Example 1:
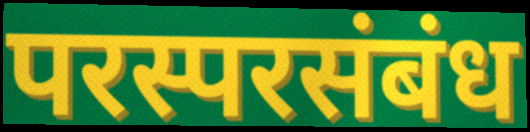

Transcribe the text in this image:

परस्परसंबंध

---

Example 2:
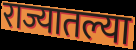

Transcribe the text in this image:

राज्यातल्या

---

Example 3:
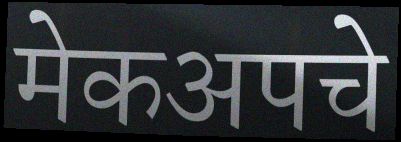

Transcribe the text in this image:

मेकअपचे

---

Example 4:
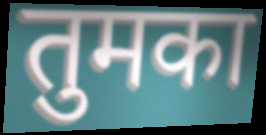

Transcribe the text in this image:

तुमका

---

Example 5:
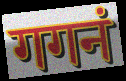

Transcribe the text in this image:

गगनं